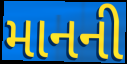
માનની